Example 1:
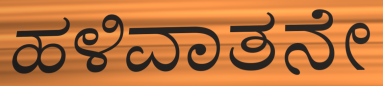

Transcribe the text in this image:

ಹಳಿವಾತನೇ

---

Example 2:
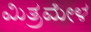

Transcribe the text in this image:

ಮಿತ್ರಮೇಳ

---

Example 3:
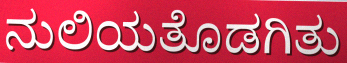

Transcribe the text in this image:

ನುಲಿಯತೊಡಗಿತು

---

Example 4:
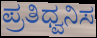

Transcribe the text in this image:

ಪ್ರತಿಧ್ವನಿಸ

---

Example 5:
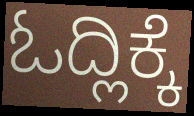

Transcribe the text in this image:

ಓದ್ಲಿಕ್ಕೆ